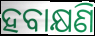
ହବାକ୍ଷଣି